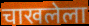
चाखलेला